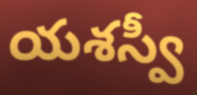
యశస్వీ